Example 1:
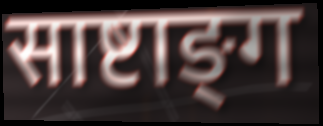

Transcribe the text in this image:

साष्टाङ्ग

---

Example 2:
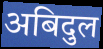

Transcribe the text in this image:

अबिदुल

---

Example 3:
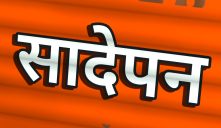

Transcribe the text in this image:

सादेपन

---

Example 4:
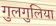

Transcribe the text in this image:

गुलगुलिया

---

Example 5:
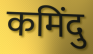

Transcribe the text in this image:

कमिंदु